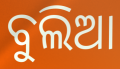
ବୁଲିଆ